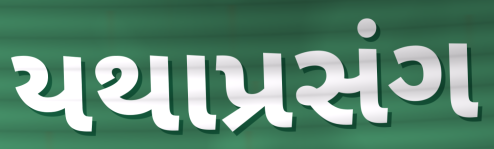
યથાપ્રસંગ